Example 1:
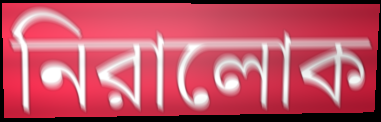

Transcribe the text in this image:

নিরালোক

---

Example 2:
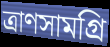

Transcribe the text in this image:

ত্রাণসামগ্রি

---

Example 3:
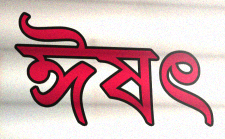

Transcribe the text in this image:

ঈষত্‍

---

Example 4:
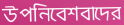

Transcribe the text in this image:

উপনিবেশবাদের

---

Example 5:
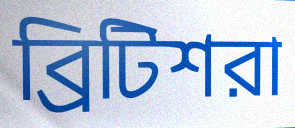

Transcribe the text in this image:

ব্রিটিশরা